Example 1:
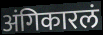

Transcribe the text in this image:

अंगिकारलं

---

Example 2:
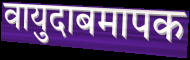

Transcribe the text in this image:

वायुदाबमापक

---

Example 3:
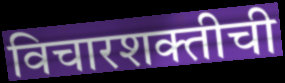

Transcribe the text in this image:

विचारशक्तीची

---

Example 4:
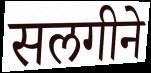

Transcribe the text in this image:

सलगीने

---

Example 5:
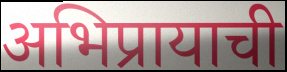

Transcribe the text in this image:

अभिप्रायाची